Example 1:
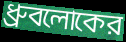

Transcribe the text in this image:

ধ্রুবলোকের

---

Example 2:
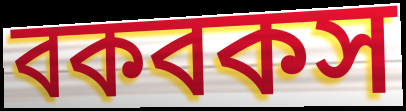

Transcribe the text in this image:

বকবকস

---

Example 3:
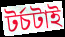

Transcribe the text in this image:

টর্চটাই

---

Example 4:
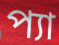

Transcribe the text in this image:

প্যা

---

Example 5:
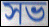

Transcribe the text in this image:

সভ